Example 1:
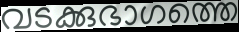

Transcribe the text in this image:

വടക്കുഭാഗത്തെ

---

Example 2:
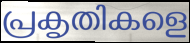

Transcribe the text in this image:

പ്രകൃതികളെ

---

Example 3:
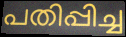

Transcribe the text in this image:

പതിപ്പിച്ച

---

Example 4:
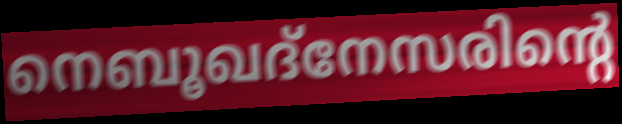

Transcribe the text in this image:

നെബൂഖദ്നേസരിന്റെ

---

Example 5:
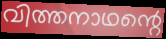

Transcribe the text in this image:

വിത്തനാഥന്റെ